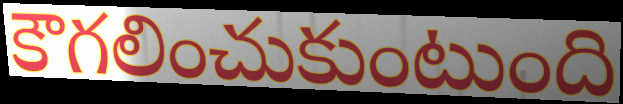
కౌగలించుకుంటుంది